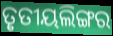
ତୃତୀୟଲିଙ୍ଗର